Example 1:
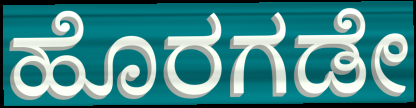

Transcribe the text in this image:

ಹೊರಗಡೇ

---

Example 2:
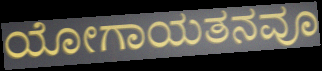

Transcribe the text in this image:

ಯೋಗಾಯತನವೂ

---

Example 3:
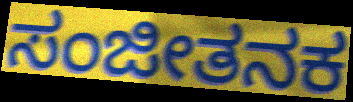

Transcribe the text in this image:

ಸಂಜೀತನಕ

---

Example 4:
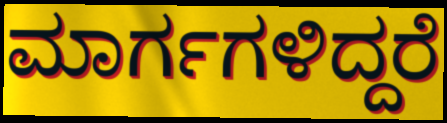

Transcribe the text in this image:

ಮಾರ್ಗಗಳಿದ್ದರೆ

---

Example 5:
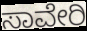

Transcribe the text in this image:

ಸಾವೇರಿ